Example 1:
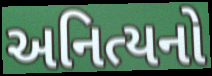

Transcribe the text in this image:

અનિત્યનો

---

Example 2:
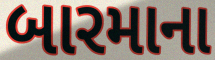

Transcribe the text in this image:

બારમાના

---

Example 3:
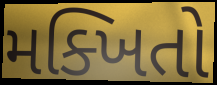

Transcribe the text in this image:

મક્ખિતો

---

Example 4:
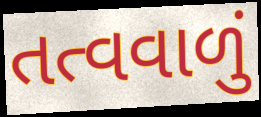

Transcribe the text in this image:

તત્વવાળું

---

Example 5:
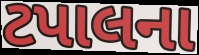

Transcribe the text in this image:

ટપાલના